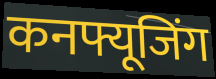
कनफ्यूजिंग